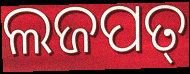
ଲଜପତ୍